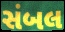
સંબલ